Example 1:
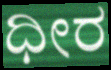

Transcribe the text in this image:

ಧೀರ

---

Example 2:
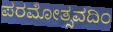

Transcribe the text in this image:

ಪರಮೋತ್ಸವದಿಂ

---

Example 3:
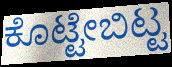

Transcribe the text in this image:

ಕೊಟ್ಟೇಬಿಟ್ಟ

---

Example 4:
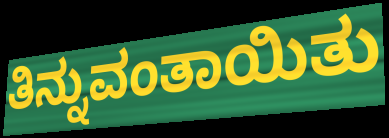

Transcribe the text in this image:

ತಿನ್ನುವಂತಾಯಿತು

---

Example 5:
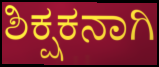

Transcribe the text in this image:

ಶಿಕ್ಷಕನಾಗಿ